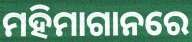
ମହିମାଗାନରେ